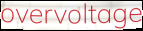
overvoltage